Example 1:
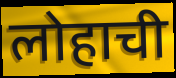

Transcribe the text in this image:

लोहाची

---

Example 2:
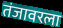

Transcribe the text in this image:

तंजावरला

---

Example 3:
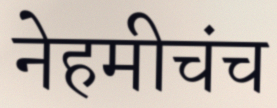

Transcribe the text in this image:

नेहमीचंच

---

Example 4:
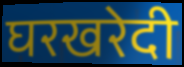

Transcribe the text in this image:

घरखरेदी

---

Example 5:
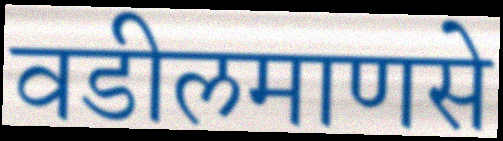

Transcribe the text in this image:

वडीलमाणसे